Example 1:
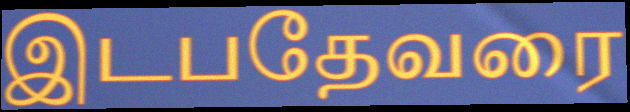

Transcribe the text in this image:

இடபதேவரை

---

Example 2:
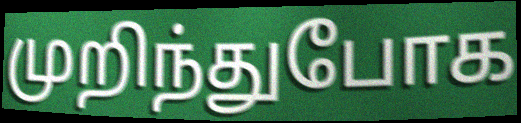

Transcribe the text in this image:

முறிந்துபோக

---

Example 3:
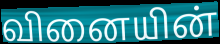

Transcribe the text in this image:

வினையின்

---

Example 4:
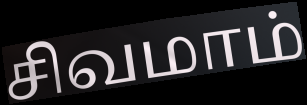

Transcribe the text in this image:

சிவமாம்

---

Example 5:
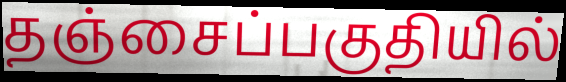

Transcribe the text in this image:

தஞ்சைப்பகுதியில்